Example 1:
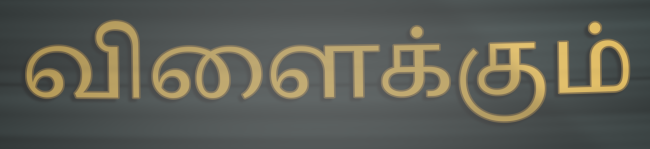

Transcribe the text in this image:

விளைக்கும்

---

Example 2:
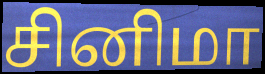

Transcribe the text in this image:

சினிமா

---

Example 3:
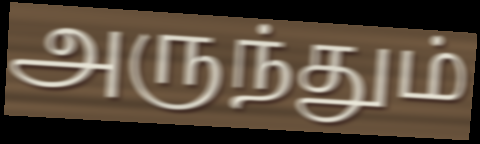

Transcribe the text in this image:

அருந்தும்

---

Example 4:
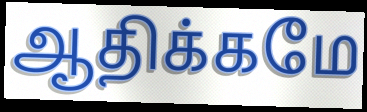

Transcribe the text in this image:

ஆதிக்கமே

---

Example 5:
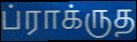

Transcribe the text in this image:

ப்ராக்ருத